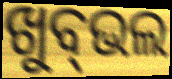
ଖୁବ୍‌ଭଲ